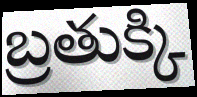
బ్రతుక్కి